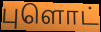
புளொட்